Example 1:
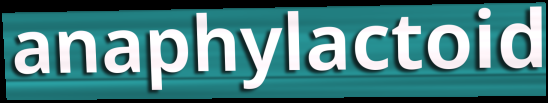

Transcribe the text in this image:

anaphylactoid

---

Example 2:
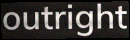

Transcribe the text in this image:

outright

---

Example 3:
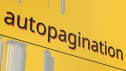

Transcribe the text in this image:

autopagination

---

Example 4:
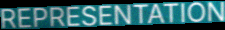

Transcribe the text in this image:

REPRESENTATION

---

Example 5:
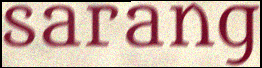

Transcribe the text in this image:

sarang